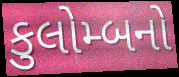
કુલોમ્બનો